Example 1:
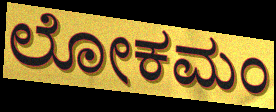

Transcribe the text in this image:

ಲೋಕಮಂ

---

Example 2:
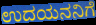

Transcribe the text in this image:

ಉದಯನನಿಗೆ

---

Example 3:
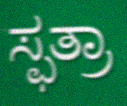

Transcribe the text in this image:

ಸ್ಫತ್ರಾ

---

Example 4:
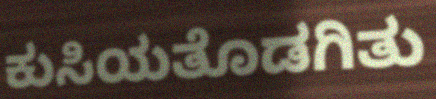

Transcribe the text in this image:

ಕುಸಿಯತೊಡಗಿತು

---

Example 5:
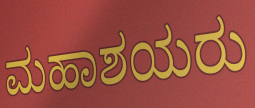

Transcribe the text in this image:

ಮಹಾಶಯರು